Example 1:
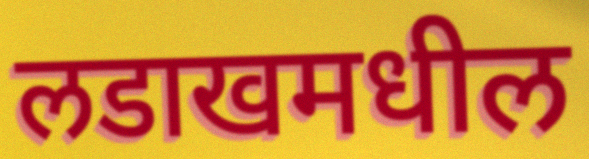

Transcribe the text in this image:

लडाखमधील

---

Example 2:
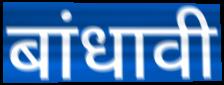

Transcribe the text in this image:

बांधावी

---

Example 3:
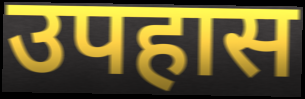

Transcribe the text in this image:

उपहास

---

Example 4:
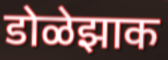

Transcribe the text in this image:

डोळेझाक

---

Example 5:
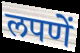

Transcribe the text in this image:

लपणें